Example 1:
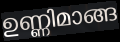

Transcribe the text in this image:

ഉണ്ണിമാങ്ങ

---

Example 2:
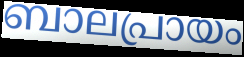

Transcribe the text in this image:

ബാലപ്രായം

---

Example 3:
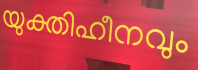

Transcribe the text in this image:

യുക്തിഹീനവും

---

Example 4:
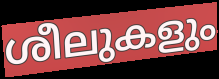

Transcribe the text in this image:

ശീലുകളും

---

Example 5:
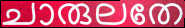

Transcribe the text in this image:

ചാരുലതേ